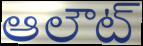
ఆలౌట్